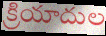
క్రియాదుల